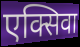
एक्सिवा